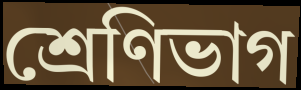
শ্রেণিভাগ